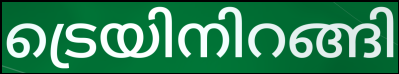
ട്രെയിനിറങ്ങി